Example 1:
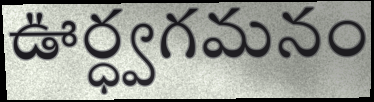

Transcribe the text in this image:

ఊర్ధ్వగమనం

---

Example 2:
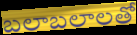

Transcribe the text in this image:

బలాబలాలతో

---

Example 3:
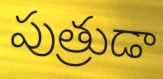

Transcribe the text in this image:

పుత్రుడా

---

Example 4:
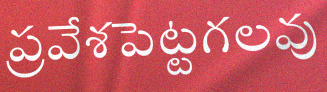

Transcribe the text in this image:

ప్రవేశపెట్టగలవు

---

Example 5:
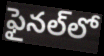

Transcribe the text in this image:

ఫైనల్‌లో